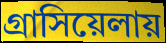
গ্রাসিয়েলায়